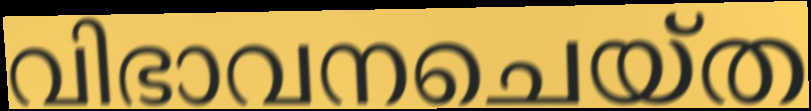
വിഭാവനചെയ്ത